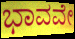
ಭಾವವೇ